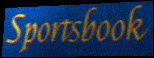
Sportsbook